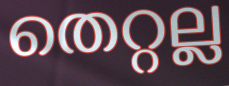
തെറ്റല്ല